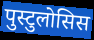
पुस्टुलोसिस